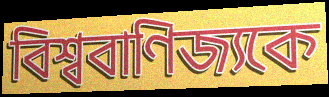
বিশ্ববাণিজ্যকে